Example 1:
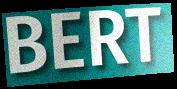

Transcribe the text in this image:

BERT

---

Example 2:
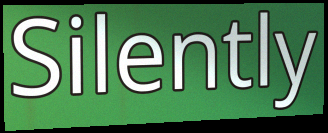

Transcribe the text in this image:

Silently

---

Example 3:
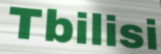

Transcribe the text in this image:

Tbilisi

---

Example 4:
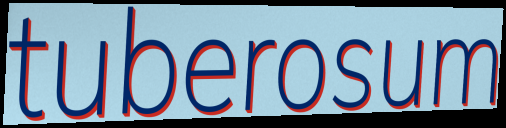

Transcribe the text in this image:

tuberosum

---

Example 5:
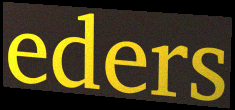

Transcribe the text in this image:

eders